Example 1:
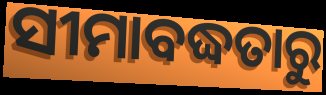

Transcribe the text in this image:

ସୀମାବଦ୍ଧତାରୁ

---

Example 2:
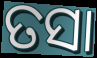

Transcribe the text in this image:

ତସା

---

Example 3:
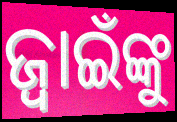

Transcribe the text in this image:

ଜ୍ବାଇଁଙ୍କୁ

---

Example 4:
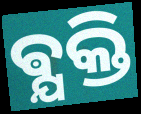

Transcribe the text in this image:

ଵ୍ଯକ୍ତି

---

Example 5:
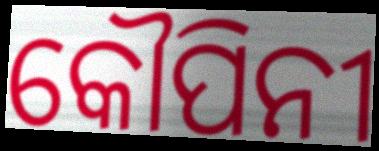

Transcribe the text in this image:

କୌପିନୀ